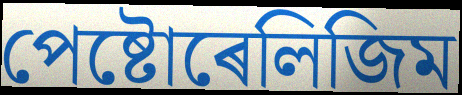
পেষ্টোৰেলিজিম